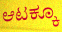
ಆಟಕ್ಕೂ